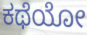
ಕಥೆಯೋ